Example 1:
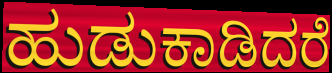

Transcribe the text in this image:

ಹುಡುಕಾಡಿದರೆ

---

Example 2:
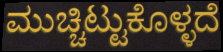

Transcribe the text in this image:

ಮುಚ್ಚಿಟ್ಟುಕೊಳ್ಳದೆ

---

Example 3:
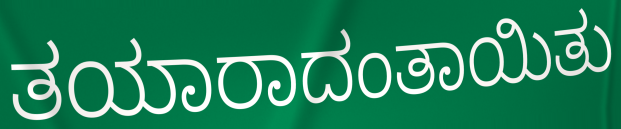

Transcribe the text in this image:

ತಯಾರಾದಂತಾಯಿತು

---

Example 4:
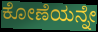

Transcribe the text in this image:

ಕೋಣೆಯನ್ನೇ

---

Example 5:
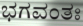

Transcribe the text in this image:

ಭಗವಂತಃ